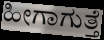
ಹೀಗಾಗುತ್ತೆ